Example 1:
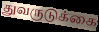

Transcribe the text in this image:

துவருடுக்கை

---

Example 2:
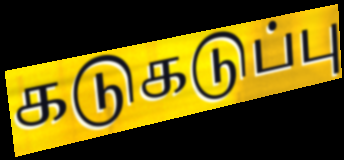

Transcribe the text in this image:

கடுகடுப்பு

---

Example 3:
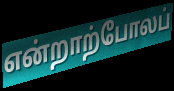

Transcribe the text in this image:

என்றாற்போலப்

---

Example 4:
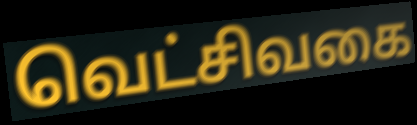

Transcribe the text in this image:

வெட்சிவகை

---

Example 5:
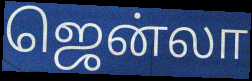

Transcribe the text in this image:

ஜென்லா